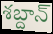
శబ్దాన్